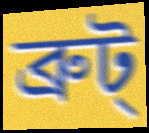
ব্রুট্